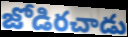
జోడిరచాడు